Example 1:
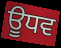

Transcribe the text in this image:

ਊਧਵ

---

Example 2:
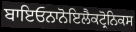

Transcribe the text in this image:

ਬਾਇਓਨਾਨੋਇਲੈਕਟ੍ਰੋਨਿਕਸ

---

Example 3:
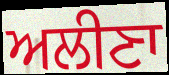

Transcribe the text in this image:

ਅਲੀਣਾ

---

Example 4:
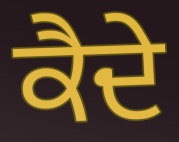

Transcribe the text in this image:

ਕੈਦੇ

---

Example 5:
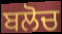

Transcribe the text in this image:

ਬਲੋਚ